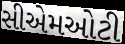
સીએમઓટી